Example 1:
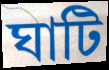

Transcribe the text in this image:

ঘাটি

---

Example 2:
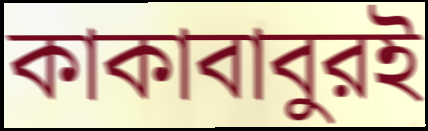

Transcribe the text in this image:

কাকাবাবুরই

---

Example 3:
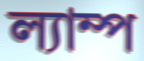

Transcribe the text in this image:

ল্যাম্প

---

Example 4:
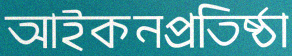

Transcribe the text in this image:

আইকনপ্রতিষ্ঠা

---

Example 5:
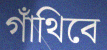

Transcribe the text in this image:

গাঁথিবে